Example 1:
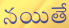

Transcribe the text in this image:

నయితే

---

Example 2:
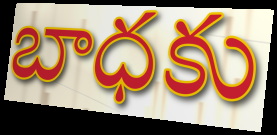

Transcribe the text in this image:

బాధకు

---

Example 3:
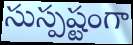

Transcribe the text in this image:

సుస్పష్టంగా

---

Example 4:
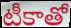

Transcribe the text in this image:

టీకాతో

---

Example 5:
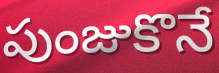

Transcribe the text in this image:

పుంజుకొనే